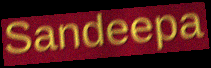
Sandeepa